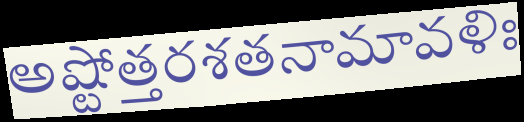
అష్టోత్తరశతనామావళిః